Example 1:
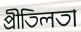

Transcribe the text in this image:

প্ৰীতিলতা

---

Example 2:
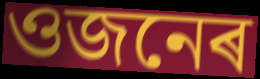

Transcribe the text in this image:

ওজনেৰ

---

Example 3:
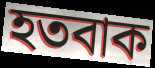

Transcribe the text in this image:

হতবাক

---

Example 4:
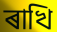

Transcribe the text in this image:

ৰাখি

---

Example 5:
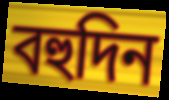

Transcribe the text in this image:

বহুদিন